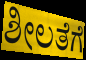
ಶೀಲತೆಗೆ